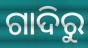
ଗାଦିରୁ